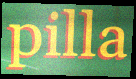
pilla